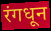
रंगधून